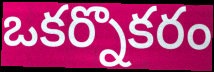
ఒకర్నొకరం